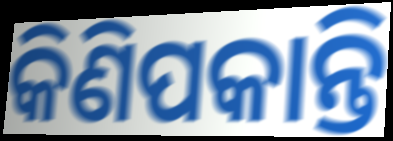
କିଣିପକାନ୍ତି